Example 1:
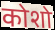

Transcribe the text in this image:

कोशो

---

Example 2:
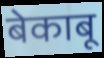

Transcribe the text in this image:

बेकाबू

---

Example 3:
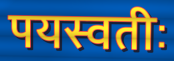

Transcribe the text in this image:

पयस्वतीः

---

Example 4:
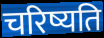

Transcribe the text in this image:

चरिष्यति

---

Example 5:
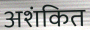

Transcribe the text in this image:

अशंकित